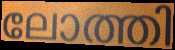
ലോത്തി